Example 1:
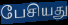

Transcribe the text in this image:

பேசியது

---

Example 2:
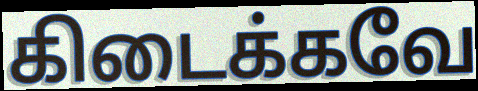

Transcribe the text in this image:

கிடைக்கவே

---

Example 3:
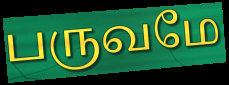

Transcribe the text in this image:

பருவமே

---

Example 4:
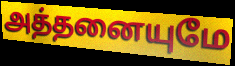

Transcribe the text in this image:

அத்தனையுமே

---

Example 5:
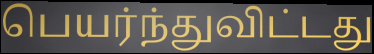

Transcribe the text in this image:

பெயர்ந்துவிட்டது